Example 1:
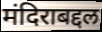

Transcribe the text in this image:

मंदिराबद्दल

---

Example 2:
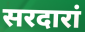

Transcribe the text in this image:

सरदारां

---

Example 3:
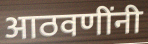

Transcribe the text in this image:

आठवणींनी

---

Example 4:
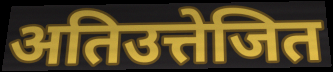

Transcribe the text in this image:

अतिउत्तेजित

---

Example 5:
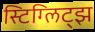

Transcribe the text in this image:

स्टिग्लिट्झ